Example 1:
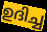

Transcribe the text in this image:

ഉദിച്ച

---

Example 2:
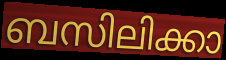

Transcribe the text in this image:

ബസിലിക്കാ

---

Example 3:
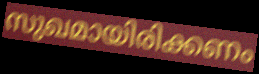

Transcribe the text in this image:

സുഖമായിരിക്കണം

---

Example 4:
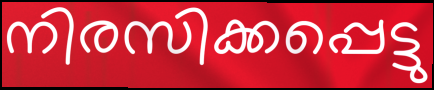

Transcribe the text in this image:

നിരസിക്കപ്പെട്ടു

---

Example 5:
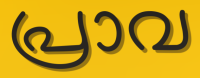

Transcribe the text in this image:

പ്രാവ